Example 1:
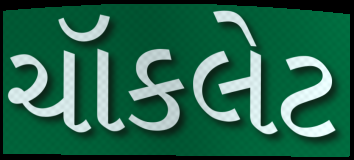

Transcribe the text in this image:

ચૉકલેટ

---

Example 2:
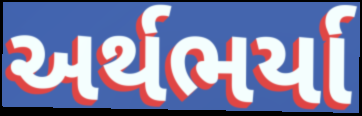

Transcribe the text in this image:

અર્થભર્યા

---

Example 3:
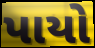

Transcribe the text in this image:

પાયો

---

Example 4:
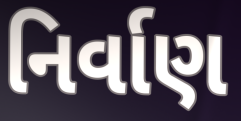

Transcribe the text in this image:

નિર્વાણ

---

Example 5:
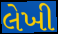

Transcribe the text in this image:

લેખી